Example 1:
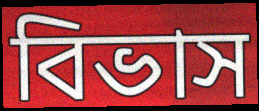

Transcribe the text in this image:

বিভাস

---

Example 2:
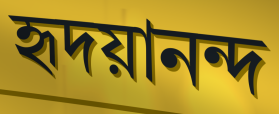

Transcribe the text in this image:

হৃদয়ানন্দ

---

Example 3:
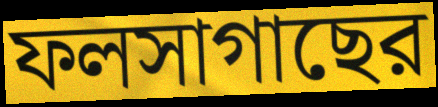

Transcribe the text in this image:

ফলসাগাছের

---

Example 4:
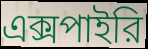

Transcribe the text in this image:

এক্সপাইরি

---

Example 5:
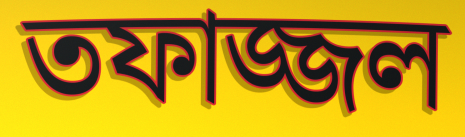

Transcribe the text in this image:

তফাজ্জল